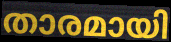
താരമായി